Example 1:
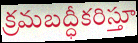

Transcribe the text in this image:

క్రమబద్ధీకరిస్తూ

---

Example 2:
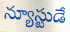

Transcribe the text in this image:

న్యూస్టుడే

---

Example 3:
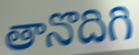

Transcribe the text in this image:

తానొదిగి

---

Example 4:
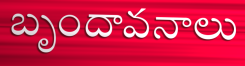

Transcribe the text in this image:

బృందావనాలు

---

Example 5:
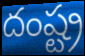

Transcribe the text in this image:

దంష్ట్ర